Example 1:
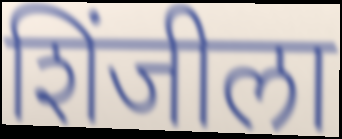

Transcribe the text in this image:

शिंजीला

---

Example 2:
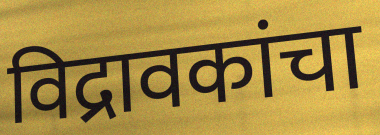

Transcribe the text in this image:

विद्रावकांचा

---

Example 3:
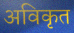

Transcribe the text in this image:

अविकृत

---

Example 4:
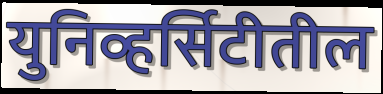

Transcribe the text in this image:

युनिव्हर्सिटीतील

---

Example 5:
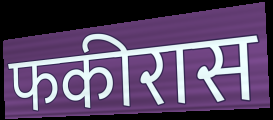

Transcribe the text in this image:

फकीरास